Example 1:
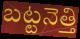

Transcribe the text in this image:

బట్టనెత్తి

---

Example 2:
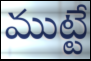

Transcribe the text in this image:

ముట్టే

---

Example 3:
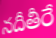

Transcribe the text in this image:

నదీతీరే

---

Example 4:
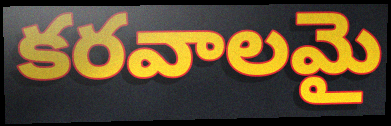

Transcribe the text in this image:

కరవాలమై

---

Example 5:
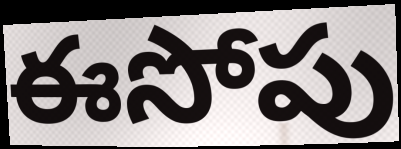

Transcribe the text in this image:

ఈసోపు